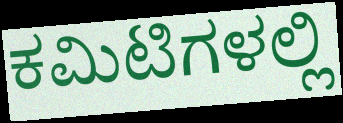
ಕಮಿಟಿಗಳಲ್ಲಿ